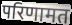
परिणामत